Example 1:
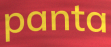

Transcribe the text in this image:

panta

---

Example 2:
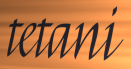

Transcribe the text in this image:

tetani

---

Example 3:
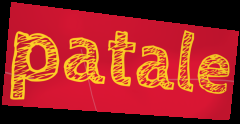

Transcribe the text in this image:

patale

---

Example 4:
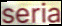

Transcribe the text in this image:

seria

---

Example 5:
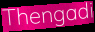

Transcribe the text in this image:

Thengadi